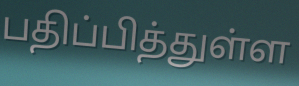
பதிப்பித்துள்ள